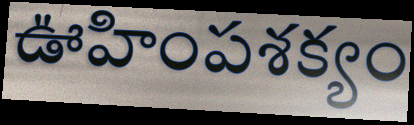
ఊహింపశక్యం